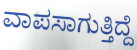
ವಾಪಸಾಗುತ್ತಿದ್ದೆ